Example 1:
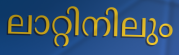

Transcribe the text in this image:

ലാറ്റിനിലും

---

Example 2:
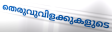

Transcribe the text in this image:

തെരുവുവിളക്കുകളുടെ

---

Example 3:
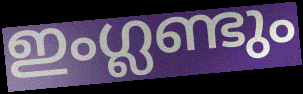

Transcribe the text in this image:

ഇംഗ്ലണ്ടും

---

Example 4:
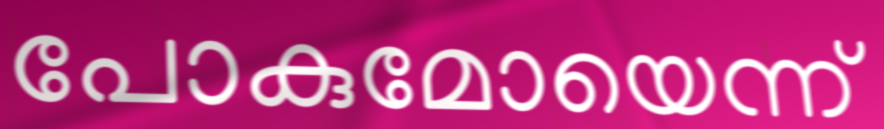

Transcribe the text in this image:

പോകുമോയെന്ന്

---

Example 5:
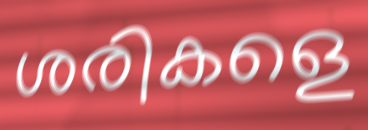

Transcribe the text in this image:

ശരികളെ